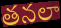
తనలా